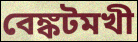
বেঙ্কটমখী